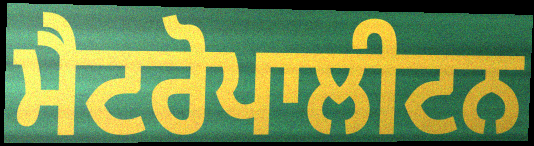
ਮੈਟਰੋਪਾਲੀਟਨ